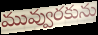
మువ్వురకును